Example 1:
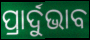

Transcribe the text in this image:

ପ୍ରାର୍ଦୁଭାବ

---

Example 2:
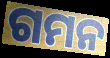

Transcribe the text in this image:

ଗମନ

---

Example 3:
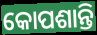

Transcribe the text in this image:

କୋପଶାନ୍ତି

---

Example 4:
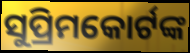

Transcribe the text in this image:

ସୁପ୍ରିମକୋର୍ଟଙ୍କ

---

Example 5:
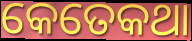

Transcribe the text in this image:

କେତେକଥା